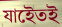
যাইেতই